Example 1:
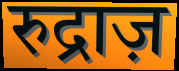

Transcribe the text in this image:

रुद्राज़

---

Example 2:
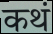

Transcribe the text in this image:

कथं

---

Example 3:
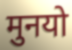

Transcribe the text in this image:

मुनयो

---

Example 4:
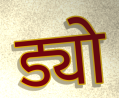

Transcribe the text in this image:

ड्यो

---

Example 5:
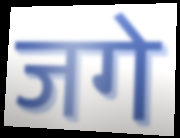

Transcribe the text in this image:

जगे